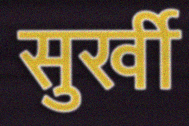
सुर्खी